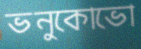
ভনুকোভো